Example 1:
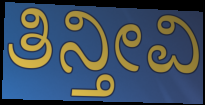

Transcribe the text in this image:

ತಿನ್ತೀವಿ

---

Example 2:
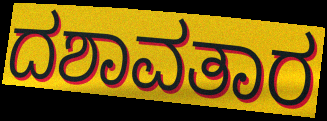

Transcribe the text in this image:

ದಶಾವತಾರ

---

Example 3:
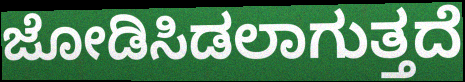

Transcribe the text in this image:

ಜೋಡಿಸಿಡಲಾಗುತ್ತದೆ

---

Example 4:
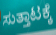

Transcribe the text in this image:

ಸುತ್ತಾಟಕ್ಕೆ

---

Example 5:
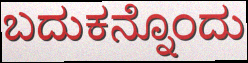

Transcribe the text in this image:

ಬದುಕನ್ನೊಂದು